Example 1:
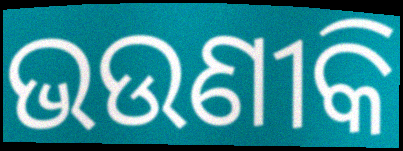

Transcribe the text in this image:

ଭଉଣୀକି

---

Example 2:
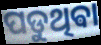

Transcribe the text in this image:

ପଡୁଥିଵା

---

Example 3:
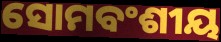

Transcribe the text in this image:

ସୋମବଂଶୀୟ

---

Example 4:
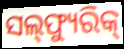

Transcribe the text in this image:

ସଲ୍‌ଫ୍ୟୁରିକ୍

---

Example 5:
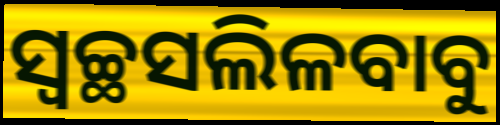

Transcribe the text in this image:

ସ୍ୱଚ୍ଛସଲିଳବାବୁ